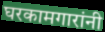
घरकामगारांनी